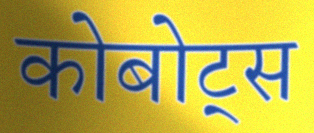
कोबोट्स